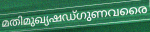
മതിമുഖ്യഷഡ്ഗുണവരൈ